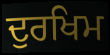
ਦੁਰਖਿਮ